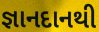
જ્ઞાનદાનથી